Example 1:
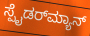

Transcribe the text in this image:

ಸ್ಪೈಡರ್‌ಮ್ಯಾನ್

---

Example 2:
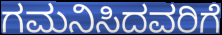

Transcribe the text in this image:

ಗಮನಿಸಿದವರಿಗೆ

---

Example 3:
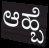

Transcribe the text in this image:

ಆಹ್ಬೆ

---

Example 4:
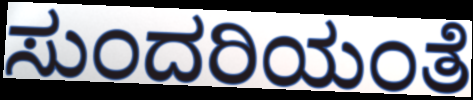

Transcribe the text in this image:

ಸುಂದರಿಯಂತೆ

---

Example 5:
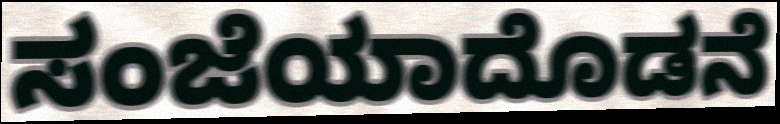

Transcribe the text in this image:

ಸಂಜೆಯಾದೊಡನೆ